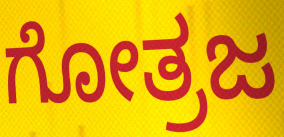
ಗೋತ್ರಜ